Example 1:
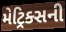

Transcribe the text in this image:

મેટ્રિક્સની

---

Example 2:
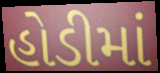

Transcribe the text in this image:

હોડીમાં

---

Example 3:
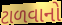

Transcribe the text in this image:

ટાળવાનો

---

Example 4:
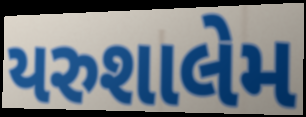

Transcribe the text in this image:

યરુશાલેમ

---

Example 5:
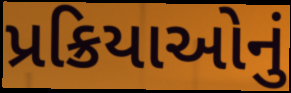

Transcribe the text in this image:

પ્રક્રિયાઓનું